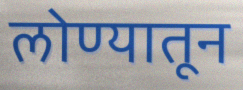
लोण्यातून